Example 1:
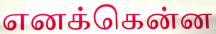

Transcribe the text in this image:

எனக்கென்ன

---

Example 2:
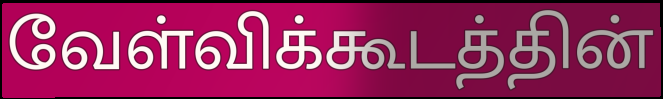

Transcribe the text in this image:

வேள்விக்கூடத்தின்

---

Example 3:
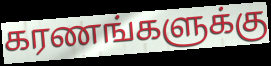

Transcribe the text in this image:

கரணங்களுக்கு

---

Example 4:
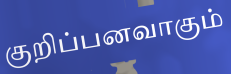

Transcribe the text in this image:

குறிப்பனவாகும்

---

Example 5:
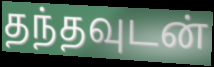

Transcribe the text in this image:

தந்தவுடன்